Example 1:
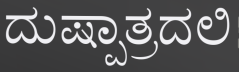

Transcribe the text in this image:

ದುಷ್ಪಾತ್ರದಲಿ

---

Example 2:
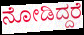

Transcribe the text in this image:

ನೋಡಿದ್ದರೆ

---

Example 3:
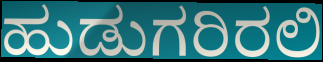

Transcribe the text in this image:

ಹುಡುಗರಿರಲಿ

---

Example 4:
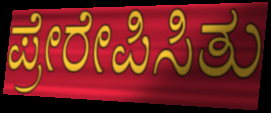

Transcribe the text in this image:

ಪ್ರೇರೇಪಿಸಿತು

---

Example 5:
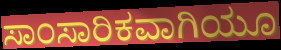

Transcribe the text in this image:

ಸಾಂಸಾರಿಕವಾಗಿಯೂ